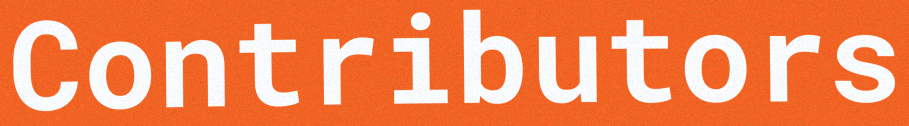
Contributors